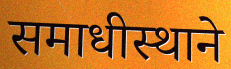
समाधीस्थाने